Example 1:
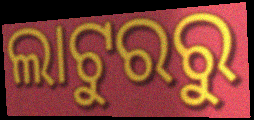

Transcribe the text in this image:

ଲାଟୁରରୁ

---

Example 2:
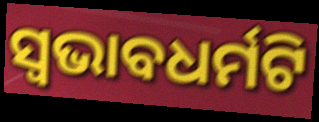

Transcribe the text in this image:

ସ୍ଵଭାବଧର୍ମଟି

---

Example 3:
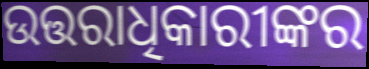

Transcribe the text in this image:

ଉତ୍ତରାଧିକାରୀଙ୍କର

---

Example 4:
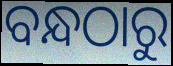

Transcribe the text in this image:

ବନ୍ଧଠାରୁ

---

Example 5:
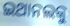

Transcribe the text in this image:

ଇଥାନଲକୁ